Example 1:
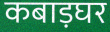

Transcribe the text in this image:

कबाड़घर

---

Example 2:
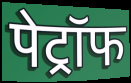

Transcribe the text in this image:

पेट्रॉफ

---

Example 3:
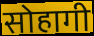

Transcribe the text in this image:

सोहागी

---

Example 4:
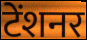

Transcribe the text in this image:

टेंशनर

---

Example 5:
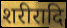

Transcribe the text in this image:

शरीरादि